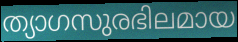
ത്യാഗസുരഭിലമായ